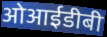
ओआईडीबी